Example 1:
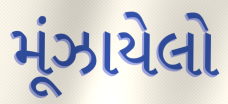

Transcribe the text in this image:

મૂંઝાયેલો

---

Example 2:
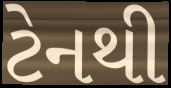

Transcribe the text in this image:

ટેનથી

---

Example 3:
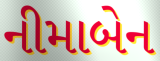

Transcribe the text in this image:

નીમાબેન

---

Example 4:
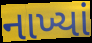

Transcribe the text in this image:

નાખ્યાં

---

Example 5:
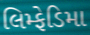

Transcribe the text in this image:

લિમ્ફેડિમા